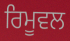
ਰਿਮੂਵਲ